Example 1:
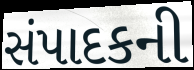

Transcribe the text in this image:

સંપાદકની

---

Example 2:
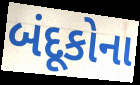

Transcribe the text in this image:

બંદૂકોના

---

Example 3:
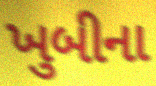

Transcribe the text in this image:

ખુબીના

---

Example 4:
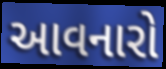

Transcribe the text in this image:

આવનારો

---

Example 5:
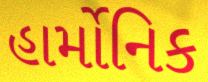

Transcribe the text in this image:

હાર્મોનિક